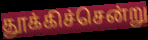
தூக்கிச்சென்று